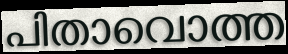
പിതാവൊത്ത